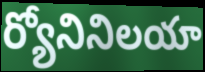
ర్యోనినిలయా